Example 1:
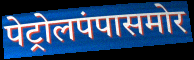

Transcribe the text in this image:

पेट्रोलपंपासमोर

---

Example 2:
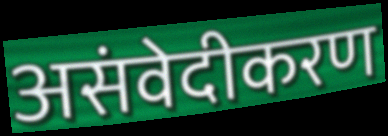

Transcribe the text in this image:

असंवेदीकरण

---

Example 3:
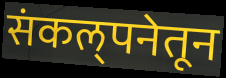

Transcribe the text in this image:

संकल्पनेतून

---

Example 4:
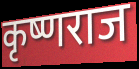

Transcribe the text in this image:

कृष्णराज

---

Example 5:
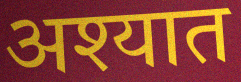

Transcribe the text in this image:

अश्यात